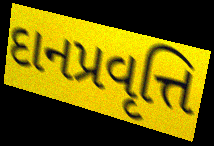
દાનપ્રવૃત્તિ